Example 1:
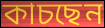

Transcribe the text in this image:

কাচছেন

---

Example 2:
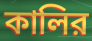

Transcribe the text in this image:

কালির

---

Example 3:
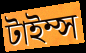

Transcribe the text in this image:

টাইম্স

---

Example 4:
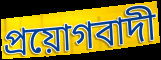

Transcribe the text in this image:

প্রয়োগবাদী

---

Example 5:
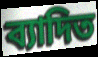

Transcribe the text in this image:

ব্যাদিত